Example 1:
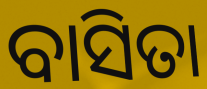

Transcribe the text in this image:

ବାସିତା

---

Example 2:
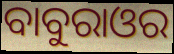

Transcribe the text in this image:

ବାବୁରାଓର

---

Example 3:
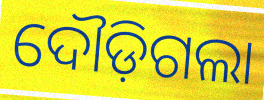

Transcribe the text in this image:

ଦୌଡ଼ିଗଲା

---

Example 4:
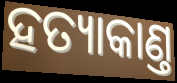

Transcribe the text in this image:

ହତ୍ୟାକାଣ୍ତ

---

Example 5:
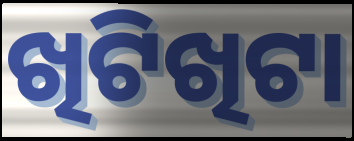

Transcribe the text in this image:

ଖିଟିଖିଟା